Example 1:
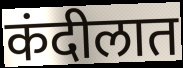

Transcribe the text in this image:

कंदीलात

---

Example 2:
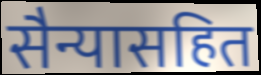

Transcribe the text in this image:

सैन्यासहित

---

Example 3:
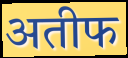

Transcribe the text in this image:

अतीफ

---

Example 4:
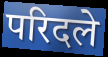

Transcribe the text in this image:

परिदले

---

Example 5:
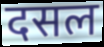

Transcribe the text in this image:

दसल